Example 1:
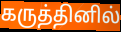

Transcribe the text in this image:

கருத்தினில்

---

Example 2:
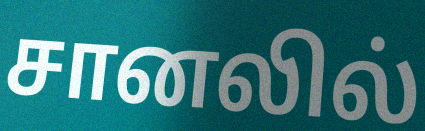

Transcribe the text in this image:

சானலில்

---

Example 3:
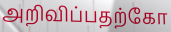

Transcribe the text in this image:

அறிவிப்பதற்கோ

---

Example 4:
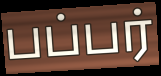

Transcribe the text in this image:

பப்பர்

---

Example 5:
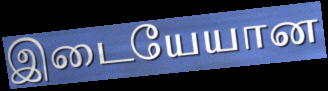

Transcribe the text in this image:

இடையேயான